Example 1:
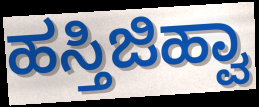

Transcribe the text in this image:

ಹಸ್ತಿಜಿಹ್ವಾ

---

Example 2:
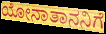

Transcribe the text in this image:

ಯೋನಾತಾನನಿಗೆ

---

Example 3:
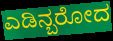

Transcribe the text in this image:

ಎಡಿನ್ಬರೋದ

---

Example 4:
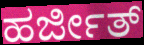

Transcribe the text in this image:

ಹರ್ಜೀತ್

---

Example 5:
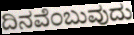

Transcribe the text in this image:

ದಿನವೆಂಬುವುದು